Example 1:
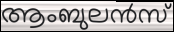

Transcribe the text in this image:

ആംബുലൻസ്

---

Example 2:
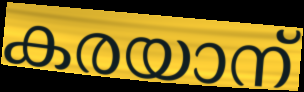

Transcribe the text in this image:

കരയാന്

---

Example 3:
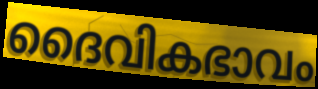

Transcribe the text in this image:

ദൈവികഭാവം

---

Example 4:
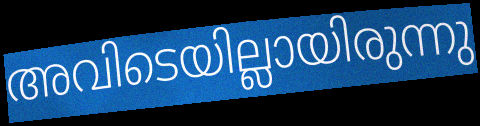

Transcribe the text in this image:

അവിടെയില്ലായിരുന്നു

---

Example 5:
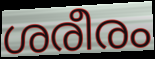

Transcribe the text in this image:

ശരീരം